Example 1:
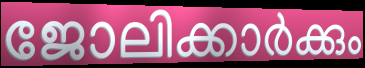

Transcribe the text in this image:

ജോലിക്കാർക്കും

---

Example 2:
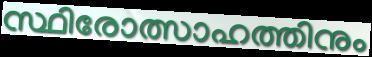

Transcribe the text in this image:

സ്ഥിരോത്സാഹത്തിനും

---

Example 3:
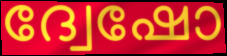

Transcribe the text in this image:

ദ്വേഷോ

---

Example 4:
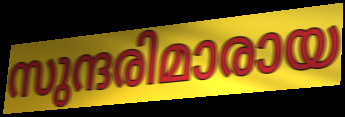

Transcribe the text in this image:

സുന്ദരിമാരായ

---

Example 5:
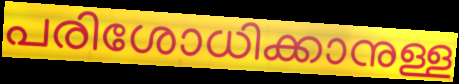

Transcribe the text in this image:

പരിശോധിക്കാനുള്ള